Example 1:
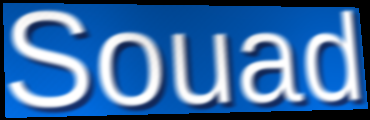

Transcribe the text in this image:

Souad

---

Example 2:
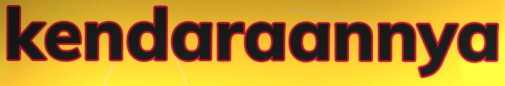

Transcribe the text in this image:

kendaraannya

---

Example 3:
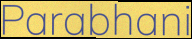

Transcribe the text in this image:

Parabhani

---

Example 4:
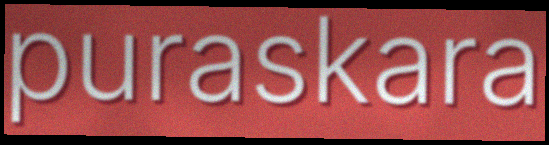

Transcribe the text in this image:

puraskara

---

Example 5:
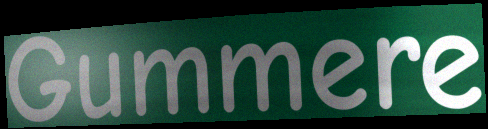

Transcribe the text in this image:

Gummere